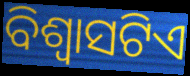
ବିଶ୍ଵାସଟିଏ